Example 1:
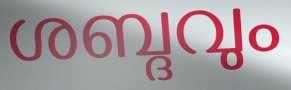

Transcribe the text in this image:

ശബ്ദവും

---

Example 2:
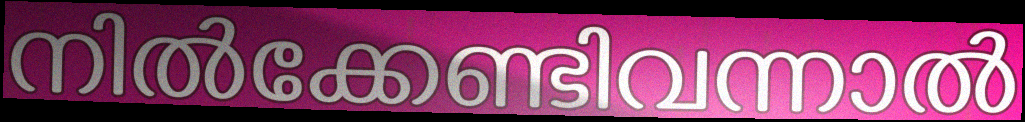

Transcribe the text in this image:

നിൽക്കേണ്ടിവന്നാൽ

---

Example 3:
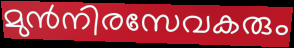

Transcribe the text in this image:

മുൻനിരസേവകരും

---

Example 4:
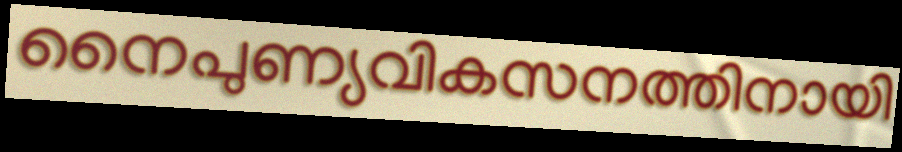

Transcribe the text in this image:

നൈപുണ്യവികസനത്തിനായി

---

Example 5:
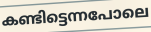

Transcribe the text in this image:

കണ്ടിട്ടെന്നപോലെ